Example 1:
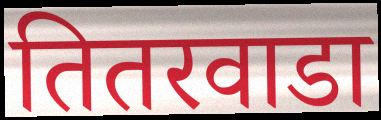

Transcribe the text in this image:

तितरवाडा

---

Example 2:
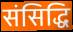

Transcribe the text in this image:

संसिद्धि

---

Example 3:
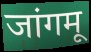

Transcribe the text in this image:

जांगमू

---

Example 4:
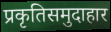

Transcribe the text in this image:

प्रकृतिसमुदाहार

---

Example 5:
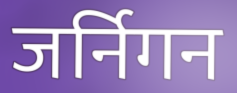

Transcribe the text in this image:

जर्निगन